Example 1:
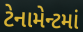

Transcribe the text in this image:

ટેનામેન્ટમાં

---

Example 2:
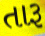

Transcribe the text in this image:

તારૂ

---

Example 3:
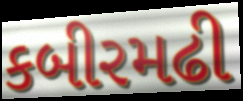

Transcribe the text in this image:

કબીરમઢી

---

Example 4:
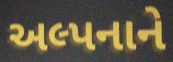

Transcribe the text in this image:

અલ્પનાને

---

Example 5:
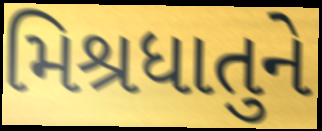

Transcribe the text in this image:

મિશ્રધાતુને